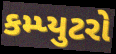
કમ્પ્યુટરો